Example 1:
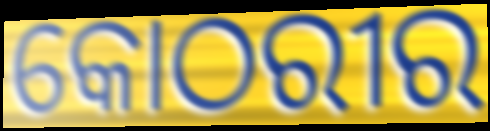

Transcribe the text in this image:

କୋଠରୀର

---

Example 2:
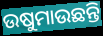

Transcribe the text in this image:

ଉଷୁମାଉଛନ୍ତି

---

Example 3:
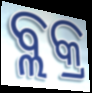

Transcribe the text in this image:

ବ୍ଲକ୍ର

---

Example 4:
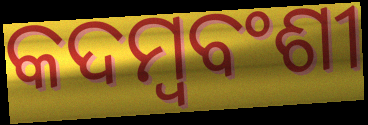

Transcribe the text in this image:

କଦମ୍ବବଂଶୀ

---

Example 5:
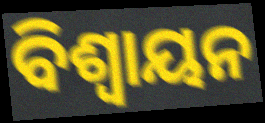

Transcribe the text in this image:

ବିଶ୍ୱାୟନ